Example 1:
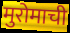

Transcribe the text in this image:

मुरोमाची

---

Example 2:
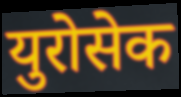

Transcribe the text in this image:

युरोसेक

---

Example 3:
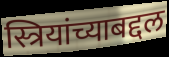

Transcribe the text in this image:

स्त्रियांच्याबद्दल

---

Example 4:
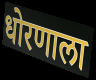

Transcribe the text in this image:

धोरणाला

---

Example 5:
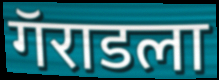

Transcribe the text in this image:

गॅराडला